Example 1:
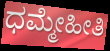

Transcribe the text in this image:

ಧಮ್ಮೇಹೀತಿ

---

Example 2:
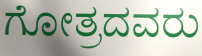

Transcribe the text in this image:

ಗೋತ್ರದವರು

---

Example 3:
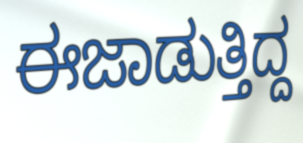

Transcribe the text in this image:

ಈಜಾಡುತ್ತಿದ್ದ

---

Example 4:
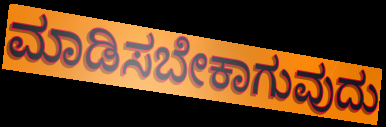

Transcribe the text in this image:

ಮಾಡಿಸಬೇಕಾಗುವುದು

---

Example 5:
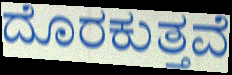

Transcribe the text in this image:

ದೊರಕುತ್ತವೆ